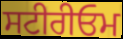
ਸਟੀਰੀਓਮ